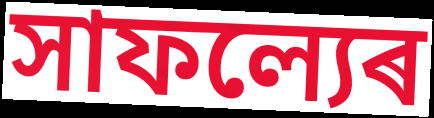
সাফল্যেৰ